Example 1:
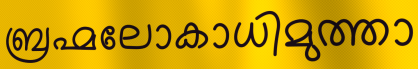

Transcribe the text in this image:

ബ്രഹ്മലോകാധിമുത്താ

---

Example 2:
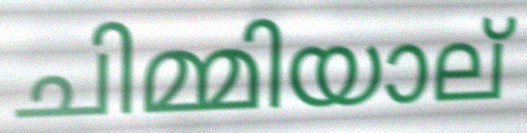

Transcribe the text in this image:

ചിമ്മിയാല്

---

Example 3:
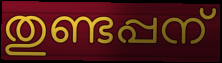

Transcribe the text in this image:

തുണ്ടപ്പന്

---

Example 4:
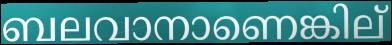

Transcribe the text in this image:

ബലവാനാണെങ്കില്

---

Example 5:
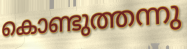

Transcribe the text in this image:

കൊണ്ടുത്തന്നു